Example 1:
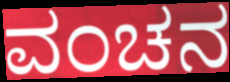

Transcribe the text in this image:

ವಂಚನ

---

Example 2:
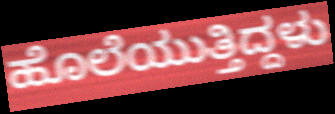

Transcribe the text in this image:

ಹೊಲೆಯುತ್ತಿದ್ದಳು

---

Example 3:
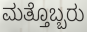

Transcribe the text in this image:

ಮತ್ತೊಬ್ಬರು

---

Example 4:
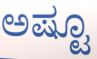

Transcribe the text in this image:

ಅಷ್ಟೂ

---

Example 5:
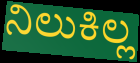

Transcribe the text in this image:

ನಿಲುಕಿಲ್ಲ